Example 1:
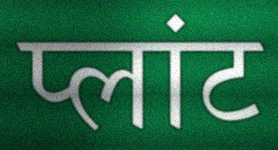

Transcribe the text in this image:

प्‍लांट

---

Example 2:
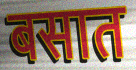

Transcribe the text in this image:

बसात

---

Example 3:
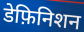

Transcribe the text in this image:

डेफ़िनिशन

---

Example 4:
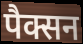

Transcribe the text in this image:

पैक्सन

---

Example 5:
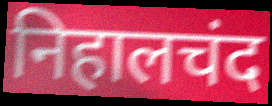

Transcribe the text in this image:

निहालचंद